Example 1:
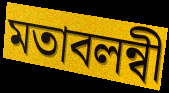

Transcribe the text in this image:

মতাবলন্বী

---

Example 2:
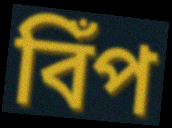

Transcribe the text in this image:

বিঁপ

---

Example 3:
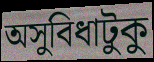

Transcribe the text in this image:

অসুবিধাটুকু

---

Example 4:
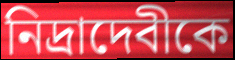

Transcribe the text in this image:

নিদ্রাদেবীকে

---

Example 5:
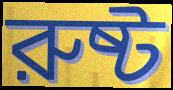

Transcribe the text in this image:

রুষ্ট